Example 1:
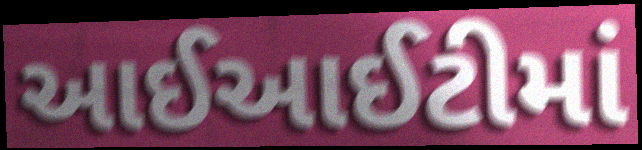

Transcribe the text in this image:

આઈઆઈટીમાં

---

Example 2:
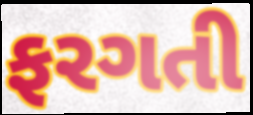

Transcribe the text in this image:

ફરગતી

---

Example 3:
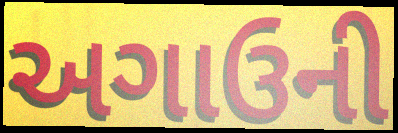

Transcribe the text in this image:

અગાઉની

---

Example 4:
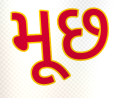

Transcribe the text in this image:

મૂછ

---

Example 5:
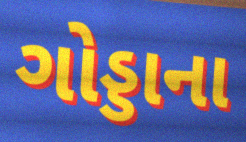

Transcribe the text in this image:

ગોડ્ડાના